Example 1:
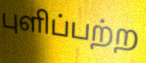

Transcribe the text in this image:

புளிப்பற்ற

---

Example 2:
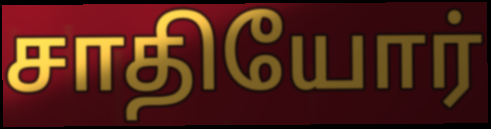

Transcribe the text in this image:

சாதியோர்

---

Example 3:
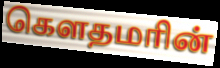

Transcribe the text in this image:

கௌதமரின்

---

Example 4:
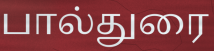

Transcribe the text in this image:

பால்துரை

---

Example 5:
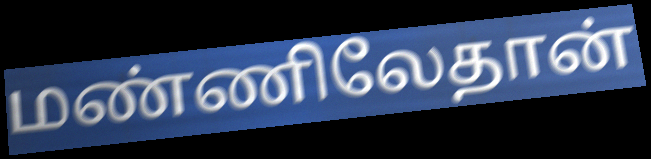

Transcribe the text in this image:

மண்ணிலேதான்